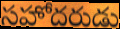
సహోదరుడు